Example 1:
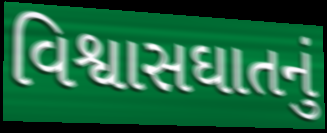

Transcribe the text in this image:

વિશ્વાસઘાતનું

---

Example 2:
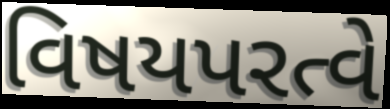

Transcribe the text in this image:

વિષયપરત્વે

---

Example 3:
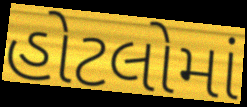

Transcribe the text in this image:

હોટલોમાં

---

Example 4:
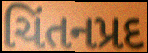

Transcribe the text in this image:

ચિંતનપ્રદ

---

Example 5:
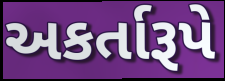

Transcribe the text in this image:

અકર્તારૂપે